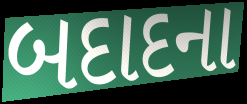
બદાદના